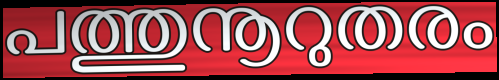
പത്തുനൂറുതരം